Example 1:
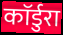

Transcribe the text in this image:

कॉर्डुरा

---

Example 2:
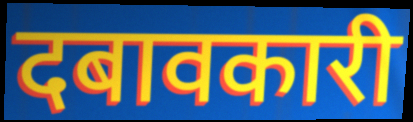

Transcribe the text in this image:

दबावकारी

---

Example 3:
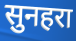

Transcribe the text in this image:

सुनहरा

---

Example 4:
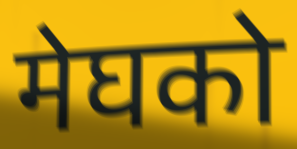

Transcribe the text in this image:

मेघको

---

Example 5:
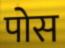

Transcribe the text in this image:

पोस